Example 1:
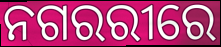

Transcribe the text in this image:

ନଗରରୀରେ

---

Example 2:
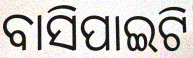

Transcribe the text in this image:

ବାସିପାଇଟି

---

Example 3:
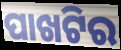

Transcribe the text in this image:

ପାଖଟିର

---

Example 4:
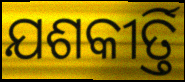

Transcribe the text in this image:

ଯଶକୀର୍ତ୍ତି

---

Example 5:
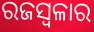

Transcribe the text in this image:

ରଜସ୍ୱଳାର